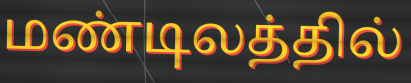
மண்டிலத்தில்